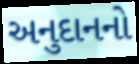
અનુદાનનો